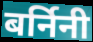
बर्निनी